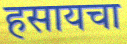
हसायचा